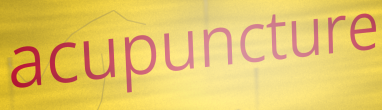
acupuncture